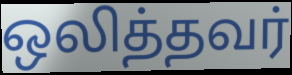
ஒலித்தவர்